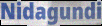
Nidagundi